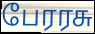
பேரரசு